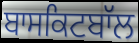
ਬਾਸਕਿਟਬਾੱਲ